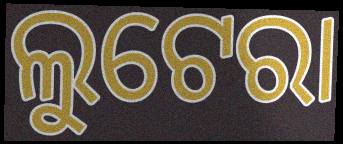
ଲୁଟେରା